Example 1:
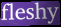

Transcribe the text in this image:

fleshy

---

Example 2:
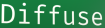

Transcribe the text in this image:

Diffuse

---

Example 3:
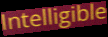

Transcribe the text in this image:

Intelligible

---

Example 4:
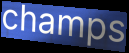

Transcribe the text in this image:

champs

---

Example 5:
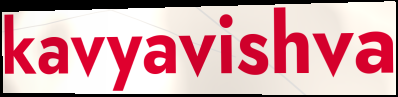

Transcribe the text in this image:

kavyavishva